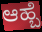
ಆಹ್ಬೆ